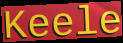
Keele